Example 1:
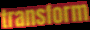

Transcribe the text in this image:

transform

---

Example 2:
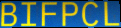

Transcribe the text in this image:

BIFPCL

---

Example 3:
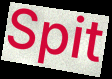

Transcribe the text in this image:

Spit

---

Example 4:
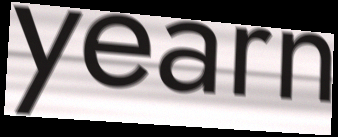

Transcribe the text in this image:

yearn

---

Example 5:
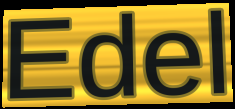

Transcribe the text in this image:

Edel